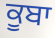
ਕੂਬਾ